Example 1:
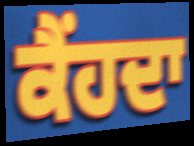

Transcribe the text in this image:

ਕੈਂਹਦਾ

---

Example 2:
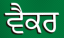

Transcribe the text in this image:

ਵੈਕਰ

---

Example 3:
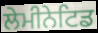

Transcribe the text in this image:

ਲੇਮੀਨੇਟਿਡ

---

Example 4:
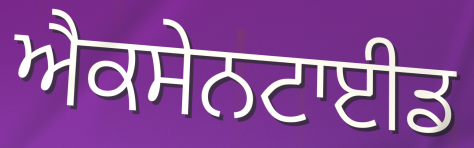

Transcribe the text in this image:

ਐਕਸੇਨਟਾਈਡ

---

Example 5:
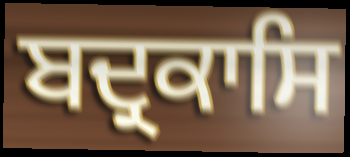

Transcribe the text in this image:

ਬਦ੍ਰਕਾਸਿ